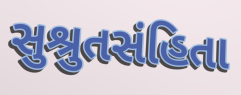
સુશ્રુતસંહિતા